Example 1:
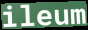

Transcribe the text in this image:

ileum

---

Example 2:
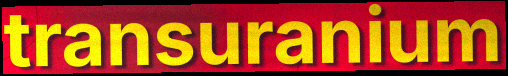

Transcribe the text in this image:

transuranium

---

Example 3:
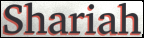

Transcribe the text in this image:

Shariah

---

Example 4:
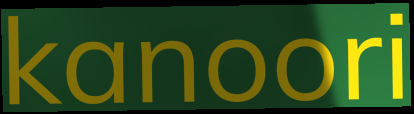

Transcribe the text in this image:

kanoori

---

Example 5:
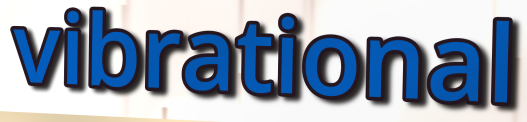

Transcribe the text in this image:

vibrational